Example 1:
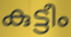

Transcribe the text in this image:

കുട്ടീം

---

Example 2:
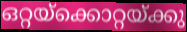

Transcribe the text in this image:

ഒറ്റയ്ക്കൊറ്റയ്ക്കു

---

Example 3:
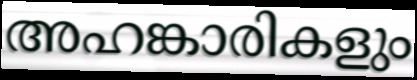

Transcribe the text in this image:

അഹങ്കാരികളും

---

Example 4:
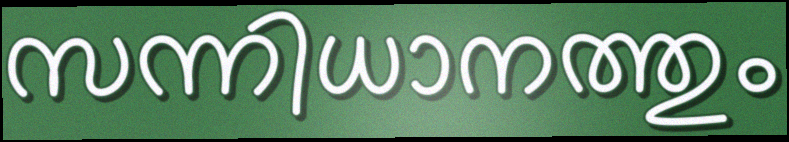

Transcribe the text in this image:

സന്നിധാനത്തും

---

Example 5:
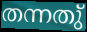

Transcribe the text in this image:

തന്നതു്